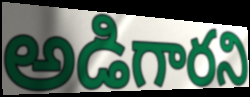
అడిగారని